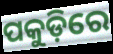
ପକୁଡ଼ିରେ